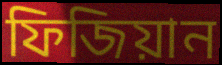
ফিজিয়ান